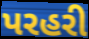
પરહરી